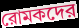
রোমকদের